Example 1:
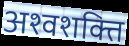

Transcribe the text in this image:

अश्वशक्ति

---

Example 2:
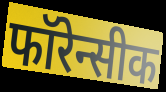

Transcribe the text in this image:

फॉरेन्सीक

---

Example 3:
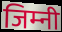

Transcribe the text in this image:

जिम्नी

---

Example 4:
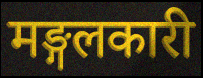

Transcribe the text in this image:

मङ्गलकारी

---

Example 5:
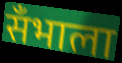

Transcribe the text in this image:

सँभाला